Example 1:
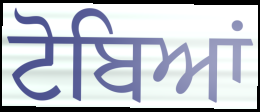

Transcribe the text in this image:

ਟੋਬਿਆਂ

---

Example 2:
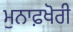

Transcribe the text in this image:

ਮੁਨਾਫ਼ਖੋਰੀ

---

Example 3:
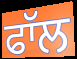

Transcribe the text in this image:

ਫਾੱਲ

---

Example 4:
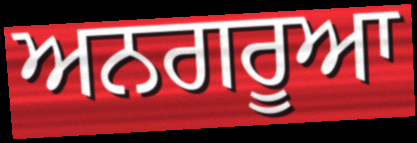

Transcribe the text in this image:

ਅਨਗਰੂਆ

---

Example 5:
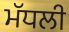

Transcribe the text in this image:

ਮੱਧਲੀ